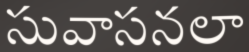
సువాసనలా